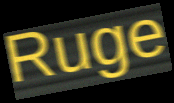
Ruge